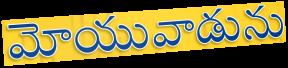
మోయువాడును